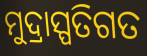
ମୁଦ୍ରାସ୍ପତିଗତ